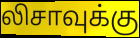
லிசாவுக்கு